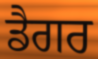
ਡੈਗਰ